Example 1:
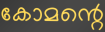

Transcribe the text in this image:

കോമന്റെ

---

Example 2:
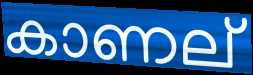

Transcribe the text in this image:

കാണല്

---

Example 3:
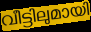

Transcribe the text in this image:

വീട്ടിലുമായി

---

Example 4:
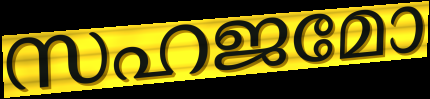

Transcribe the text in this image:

സഹജമോ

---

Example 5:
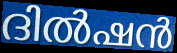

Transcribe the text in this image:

ദിൽഷൻ